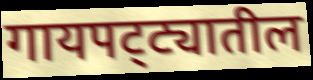
गायपट्ट्यातील